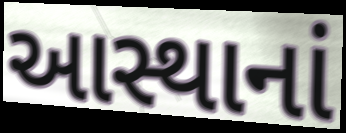
આસ્થાનાં